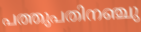
പത്തുപതിനഞ്ചു